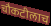
चौकटीलाच